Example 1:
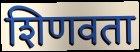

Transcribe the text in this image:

शिणवता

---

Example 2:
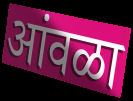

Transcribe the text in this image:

आंवळा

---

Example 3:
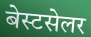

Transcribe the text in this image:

बेस्टसेलर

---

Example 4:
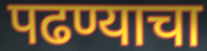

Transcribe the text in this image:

पढण्याचा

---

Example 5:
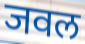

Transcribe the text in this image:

जवल